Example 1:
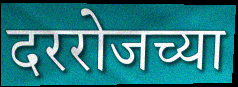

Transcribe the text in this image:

दररोजच्या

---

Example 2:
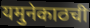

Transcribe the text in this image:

यमुनेकाठची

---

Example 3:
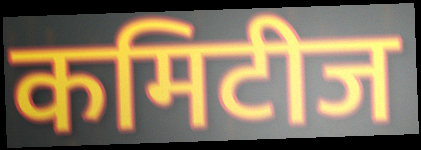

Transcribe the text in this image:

कमिटीज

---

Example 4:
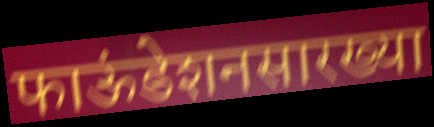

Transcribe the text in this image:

फाऊंडेशनसारख्या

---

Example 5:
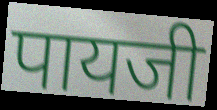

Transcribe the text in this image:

पायजी